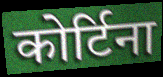
कोर्टिना